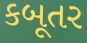
કબૂતર